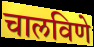
चालविणे